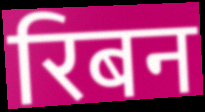
रिबन